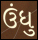
ઉંધુ